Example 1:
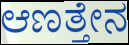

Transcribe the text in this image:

ಆಣತ್ತೇನ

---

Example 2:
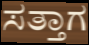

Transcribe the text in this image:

ಸತ್ತಾಗ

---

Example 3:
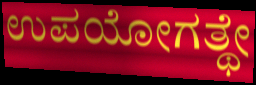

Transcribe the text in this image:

ಉಪಯೋಗತ್ಥೇ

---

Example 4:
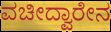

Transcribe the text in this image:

ವಚೀದ್ವಾರೇನ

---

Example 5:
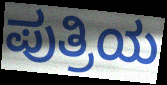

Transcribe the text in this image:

ಪುತ್ರಿಯ